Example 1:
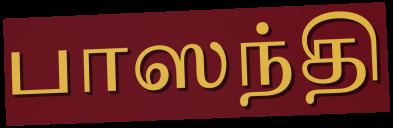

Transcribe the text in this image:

பாஸந்தி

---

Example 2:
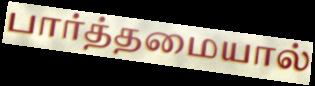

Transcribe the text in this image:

பார்த்தமையால்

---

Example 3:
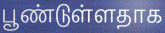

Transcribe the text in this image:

பூண்டுள்ளதாக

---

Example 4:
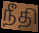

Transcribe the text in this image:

நீதி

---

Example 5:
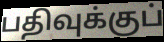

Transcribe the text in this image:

பதிவுக்குப்